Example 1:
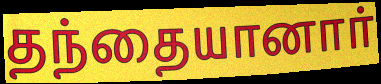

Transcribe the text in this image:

தந்தையானார்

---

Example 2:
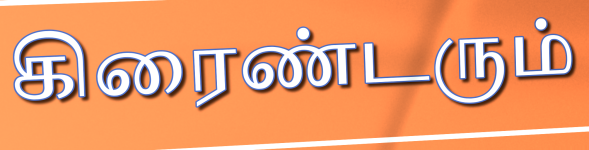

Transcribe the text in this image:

கிரைண்டரும்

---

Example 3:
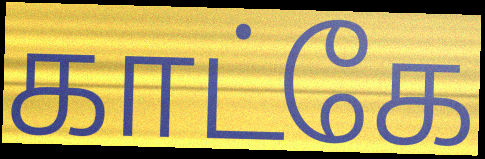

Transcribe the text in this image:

காட்கே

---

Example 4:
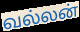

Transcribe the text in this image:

வல்லன்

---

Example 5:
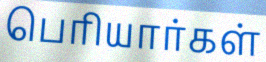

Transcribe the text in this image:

பெரியார்கள்